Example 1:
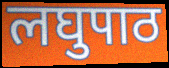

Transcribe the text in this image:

लघुपाठ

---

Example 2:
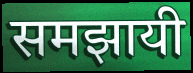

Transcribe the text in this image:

समझायी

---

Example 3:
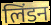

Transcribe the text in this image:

लिंडन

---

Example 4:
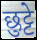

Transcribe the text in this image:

छुट्टे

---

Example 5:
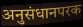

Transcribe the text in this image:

अनुसंधानपरक